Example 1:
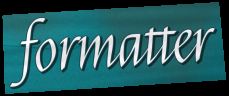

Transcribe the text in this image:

formatter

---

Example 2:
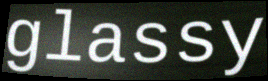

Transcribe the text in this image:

glassy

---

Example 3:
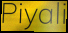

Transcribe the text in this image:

Piyali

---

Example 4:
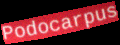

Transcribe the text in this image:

Podocarpus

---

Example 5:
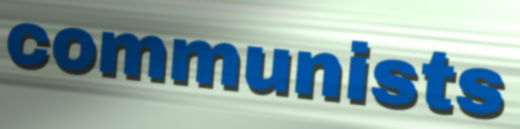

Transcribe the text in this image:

communists